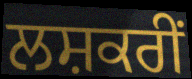
ਲਸ਼ਕਰੀਂ